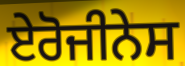
ਏਰੋਜੀਨੇਸ